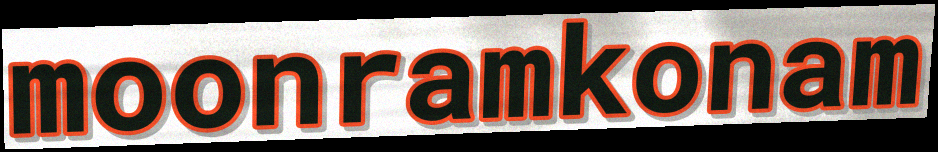
moonramkonam